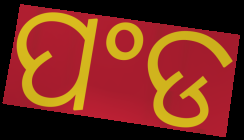
ପଂଡ